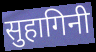
सुहागिनी